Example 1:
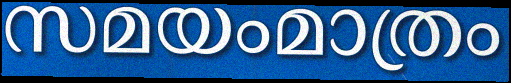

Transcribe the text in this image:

സമയംമാത്രം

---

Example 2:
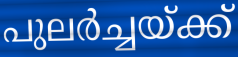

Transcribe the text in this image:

പുലർച്ചയ്ക്ക്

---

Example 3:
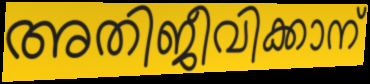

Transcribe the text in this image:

അതിജീവിക്കാന്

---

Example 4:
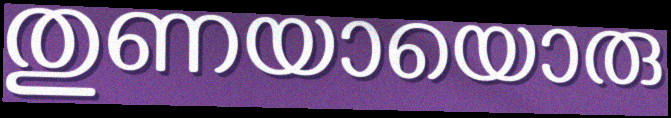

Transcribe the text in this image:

തുണയായൊരു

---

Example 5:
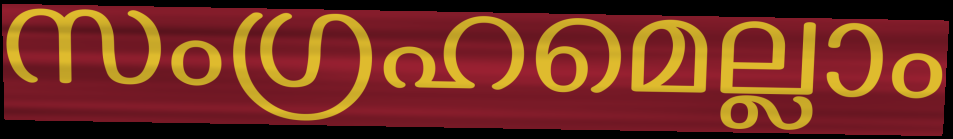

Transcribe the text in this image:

സംഗ്രഹമെല്ലാം